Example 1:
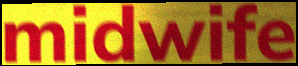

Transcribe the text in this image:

midwife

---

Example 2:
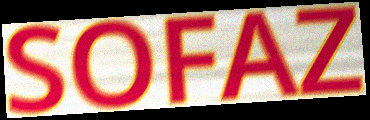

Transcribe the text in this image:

SOFAZ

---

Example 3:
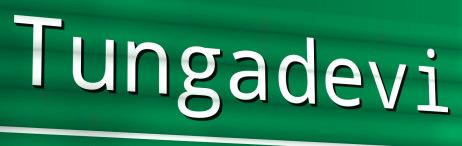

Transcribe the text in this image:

Tungadevi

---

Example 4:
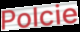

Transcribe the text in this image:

Polcie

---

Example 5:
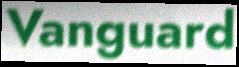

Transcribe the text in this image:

Vanguard